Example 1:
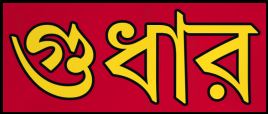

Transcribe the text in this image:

গুধার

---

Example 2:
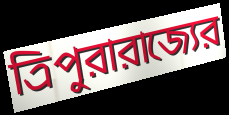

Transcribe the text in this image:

ত্রিপুরারাজ্যের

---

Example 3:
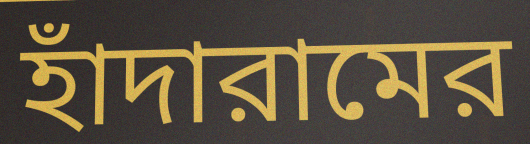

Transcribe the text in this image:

হাঁদারামের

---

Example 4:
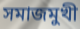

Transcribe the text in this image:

সমাজমুখী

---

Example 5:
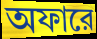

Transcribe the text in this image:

অফারে